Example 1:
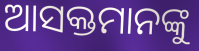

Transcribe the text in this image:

ଆସକ୍ତମାନଙ୍କୁ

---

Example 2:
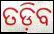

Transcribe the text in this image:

ତଡ଼ିବ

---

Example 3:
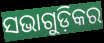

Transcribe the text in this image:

ସଭାଗୁଡ଼ିକର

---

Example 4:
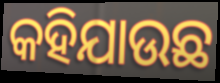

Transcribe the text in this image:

କହିଯାଉଛ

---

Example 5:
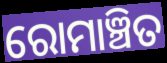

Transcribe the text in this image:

ରୋମାଞ୍ଚିତ